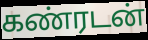
கண்ரடன்